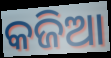
କଜିଆ